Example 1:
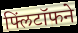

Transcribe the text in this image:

फ्लिंटॉफने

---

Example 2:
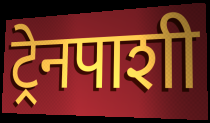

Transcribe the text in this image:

ट्रेनपाशी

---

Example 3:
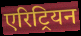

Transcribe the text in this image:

एरिट्रियन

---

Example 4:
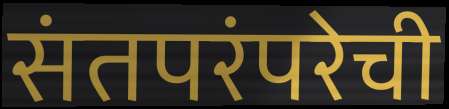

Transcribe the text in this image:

संतपरंपरेची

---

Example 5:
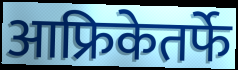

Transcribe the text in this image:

आफ्रिकेतर्फे